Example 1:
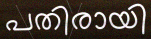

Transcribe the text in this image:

പതിരായി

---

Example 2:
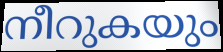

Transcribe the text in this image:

നീറുകയും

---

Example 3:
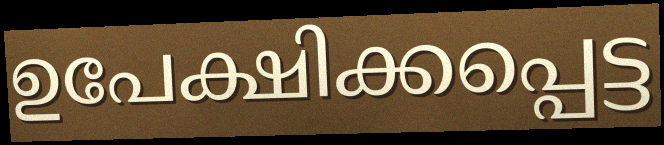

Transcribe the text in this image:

ഉപേക്ഷിക്കപ്പെട്ട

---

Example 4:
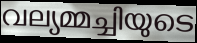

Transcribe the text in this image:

വല്യമ്മച്ചിയുടെ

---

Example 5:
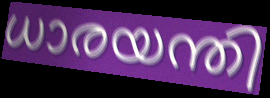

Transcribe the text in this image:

ധാരയന്തി